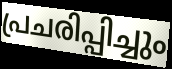
പ്രചരിപ്പിച്ചും